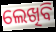
ଲେଖିବି